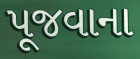
પૂજવાના